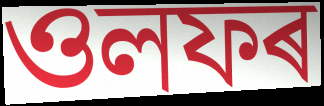
ওলফৰ